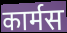
कार्मस